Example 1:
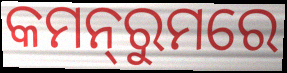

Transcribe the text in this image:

କମନ୍‌ରୁମରେ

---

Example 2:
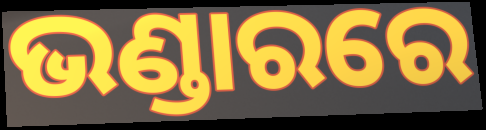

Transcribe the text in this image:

ଭଣ୍ଡାରରେ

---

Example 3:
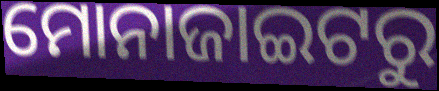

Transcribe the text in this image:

ମୋନାଜାଇଟରୁ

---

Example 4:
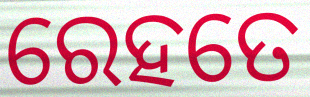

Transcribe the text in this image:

ରେହତେ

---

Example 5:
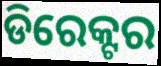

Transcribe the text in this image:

ଡିରେକ୍ଟର